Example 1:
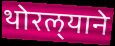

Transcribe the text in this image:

थोरल्याने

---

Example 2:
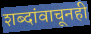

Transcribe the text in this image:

शब्दांवाचूनही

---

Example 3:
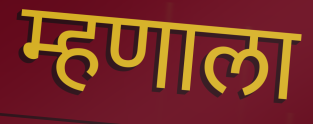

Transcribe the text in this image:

म्हणाला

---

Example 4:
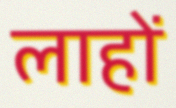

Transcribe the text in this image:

लाहों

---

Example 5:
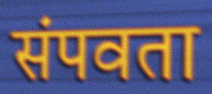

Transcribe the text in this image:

संपवता